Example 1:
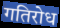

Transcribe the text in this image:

गतिरोध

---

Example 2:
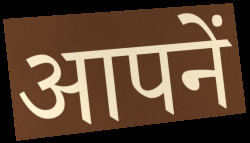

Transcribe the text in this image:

आपनें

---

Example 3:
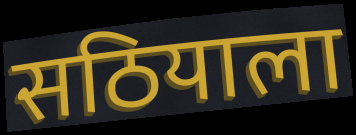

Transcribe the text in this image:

सठियाला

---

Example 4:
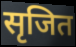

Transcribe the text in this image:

सृजित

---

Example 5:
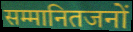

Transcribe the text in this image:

सम्मानितजनों